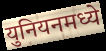
युनियनमध्ये